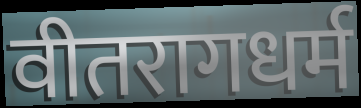
वीतरागधर्म